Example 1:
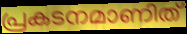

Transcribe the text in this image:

പ്രകടനമാണിത്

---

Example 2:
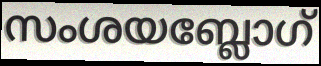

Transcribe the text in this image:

സംശയബ്ലോഗ്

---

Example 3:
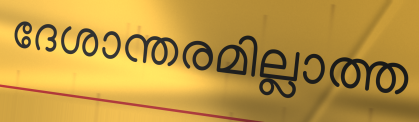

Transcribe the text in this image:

ദേശാന്തരമില്ലാത്ത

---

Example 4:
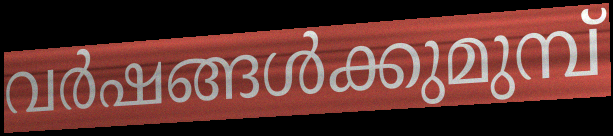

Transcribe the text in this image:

വർഷങ്ങൾക്കുമുമ്പ്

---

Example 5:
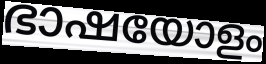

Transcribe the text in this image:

ഭാഷയോളം